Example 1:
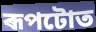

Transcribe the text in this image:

ৰূপটোত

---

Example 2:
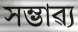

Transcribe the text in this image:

সম্ভাৱ্য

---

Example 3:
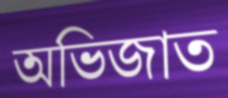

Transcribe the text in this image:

অভিজাত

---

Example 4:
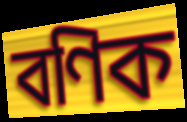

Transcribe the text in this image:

বণিক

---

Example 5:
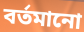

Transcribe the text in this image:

বৰ্তমানো